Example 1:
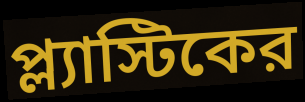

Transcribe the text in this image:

প্ল্যাস্টিকের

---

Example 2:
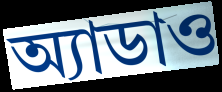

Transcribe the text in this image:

অ্যাডাও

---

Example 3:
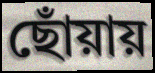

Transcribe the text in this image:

ছোঁয়ায়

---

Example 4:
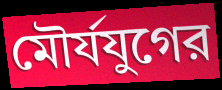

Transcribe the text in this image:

মৌর্যযুগের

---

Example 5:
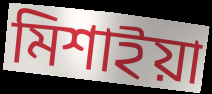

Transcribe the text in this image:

মিশাইয়া